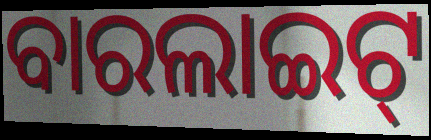
ବାରଲାଇଟ୍